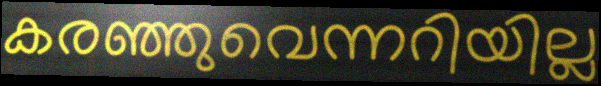
കരഞ്ഞുവെന്നറിയില്ല